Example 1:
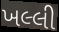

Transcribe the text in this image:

ખલ્લી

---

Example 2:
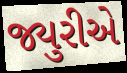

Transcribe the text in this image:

જ્યુરીએ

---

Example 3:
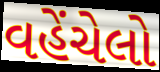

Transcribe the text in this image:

વહેંચેલો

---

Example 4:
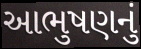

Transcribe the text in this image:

આભુષણનું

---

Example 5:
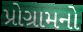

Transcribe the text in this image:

પ્રોગ્રામનો